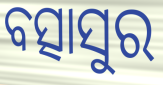
ବତ୍ସାସୁର